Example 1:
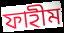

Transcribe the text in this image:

ফাহীম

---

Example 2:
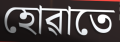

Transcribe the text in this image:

হোৱাতে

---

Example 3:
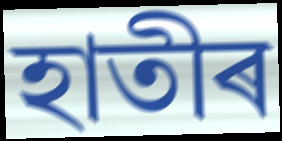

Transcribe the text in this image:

হাতীৰ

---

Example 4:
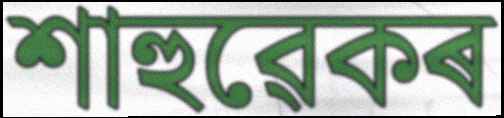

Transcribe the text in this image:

শাহুৱেকৰ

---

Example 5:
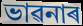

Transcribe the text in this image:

ভাৱনাৰ